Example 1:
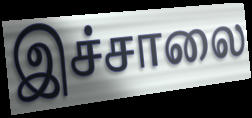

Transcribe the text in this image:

இச்சாலை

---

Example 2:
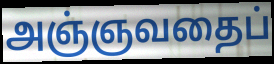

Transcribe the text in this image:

அஞ்ஞவதைப்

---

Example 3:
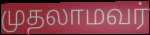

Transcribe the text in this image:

முதலாமவர்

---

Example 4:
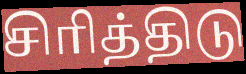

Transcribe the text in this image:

சிரித்திடு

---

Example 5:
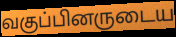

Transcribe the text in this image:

வகுப்பினருடைய